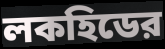
লকহিডের